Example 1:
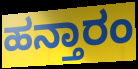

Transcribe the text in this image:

ಹನ್ತಾರಂ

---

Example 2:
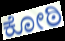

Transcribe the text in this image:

ಕೋಠಿ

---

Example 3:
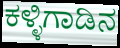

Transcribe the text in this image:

ಕಳ್ಳಿಗಾಡಿನ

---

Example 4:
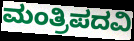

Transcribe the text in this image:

ಮಂತ್ರಿಪದವಿ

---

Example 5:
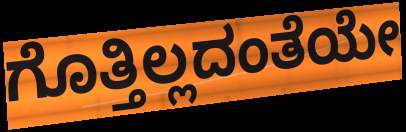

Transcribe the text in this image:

ಗೊತ್ತಿಲ್ಲದಂತೆಯೇ